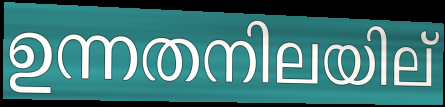
ഉന്നതനിലയില്